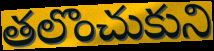
తలొంచుకుని